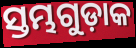
ସ୍ତମ୍ଭଗୁଡ଼ାକ